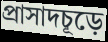
প্রাসাদচূড়ে